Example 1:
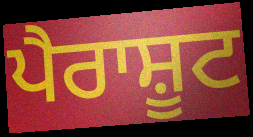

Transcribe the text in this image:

ਪੈਰਾਸ਼ੂਟ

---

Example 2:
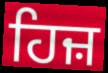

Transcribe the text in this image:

ਹਿਜ਼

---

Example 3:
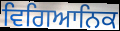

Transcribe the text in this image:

ਵਿਗਿਆਨਿਕ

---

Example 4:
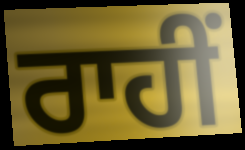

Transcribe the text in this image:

ਰਾਹੀਂ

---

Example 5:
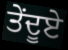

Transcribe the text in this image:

ਤੇਂਦੂਏ